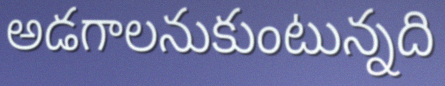
అడగాలనుకుంటున్నది